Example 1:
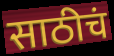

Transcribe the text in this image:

साठीचं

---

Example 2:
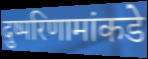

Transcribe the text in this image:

दुष्परिणामांकडे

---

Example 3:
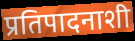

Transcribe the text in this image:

प्रतिपादनाशी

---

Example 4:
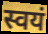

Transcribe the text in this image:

स्वयं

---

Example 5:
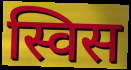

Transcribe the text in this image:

स्विस